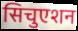
सिचुएशन